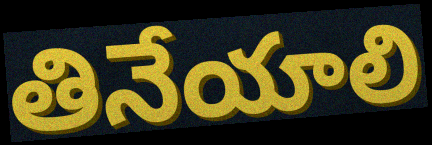
తినేయాలి